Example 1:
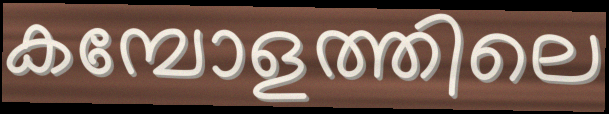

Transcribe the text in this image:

കമ്പോളത്തിലെ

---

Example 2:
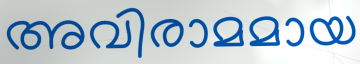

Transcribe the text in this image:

അവിരാമമായ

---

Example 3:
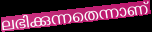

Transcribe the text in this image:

ലഭിക്കുന്നതെന്നാണ്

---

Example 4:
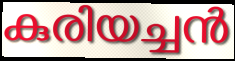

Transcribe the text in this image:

കുരിയച്ചൻ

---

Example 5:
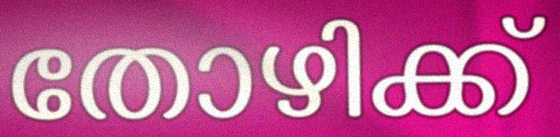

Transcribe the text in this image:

തോഴിക്ക്